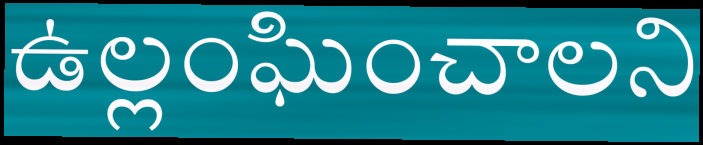
ఉల్లంఘించాలని